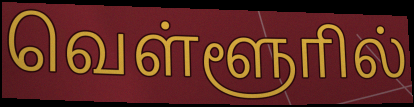
வெள்ளூரில்